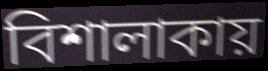
বিশালাকায়